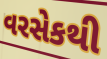
વરસેકથી